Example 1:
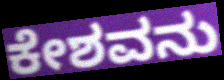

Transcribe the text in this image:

ಕೇಶವನು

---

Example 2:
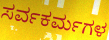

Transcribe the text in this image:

ಸರ್ವಕರ್ಮಗಳ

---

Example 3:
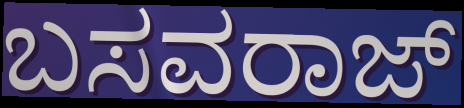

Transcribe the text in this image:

ಬಸವರಾಜ್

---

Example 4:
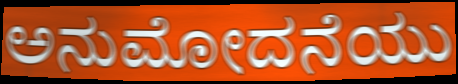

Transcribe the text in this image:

ಅನುಮೋದನೆಯು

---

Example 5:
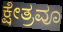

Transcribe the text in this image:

ಕ್ಷೇತ್ರವೂ